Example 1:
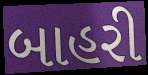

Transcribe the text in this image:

બાહરી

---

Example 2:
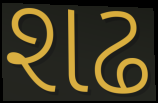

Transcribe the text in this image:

શઢ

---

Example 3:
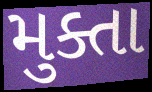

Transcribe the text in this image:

મુક્તા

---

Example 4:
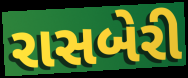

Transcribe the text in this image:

રાસબેરી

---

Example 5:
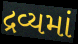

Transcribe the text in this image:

દ્રવ્યમાં